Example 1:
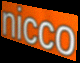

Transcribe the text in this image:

nicco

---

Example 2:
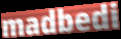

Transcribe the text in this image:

madbedi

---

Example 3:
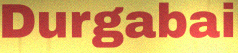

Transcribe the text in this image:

Durgabai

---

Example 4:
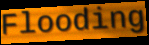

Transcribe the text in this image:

Flooding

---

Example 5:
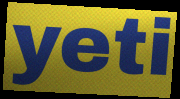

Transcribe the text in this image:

yeti